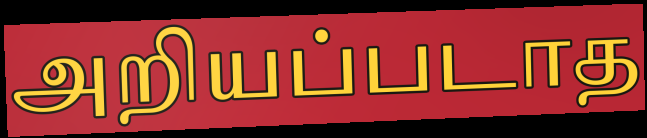
அறியப்படாத